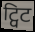
ट्विट